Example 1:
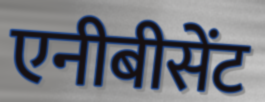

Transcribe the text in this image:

एनीबीसेंट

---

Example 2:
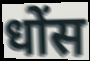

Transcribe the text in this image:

धोंस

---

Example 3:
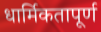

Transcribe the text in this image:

धार्मिकतापूर्ण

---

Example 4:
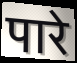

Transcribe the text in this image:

पारे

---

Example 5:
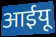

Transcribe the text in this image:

आईयू